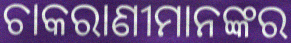
ଚାକରାଣୀମାନଙ୍କର